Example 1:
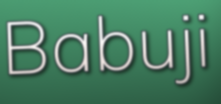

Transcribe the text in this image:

Babuji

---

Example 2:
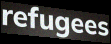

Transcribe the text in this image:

refugees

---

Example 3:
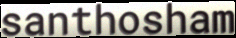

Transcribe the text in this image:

santhosham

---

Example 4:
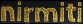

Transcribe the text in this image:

nirmiti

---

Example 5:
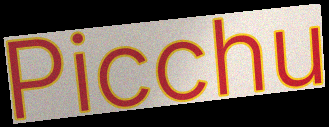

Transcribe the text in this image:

Picchu